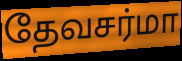
தேவசர்மா